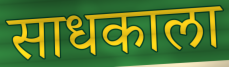
साधकाला